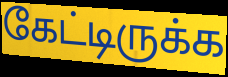
கேட்டிருக்க